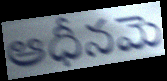
ఆధీనమె